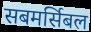
सबमर्सिबल